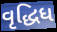
વૃદ્ધિધ